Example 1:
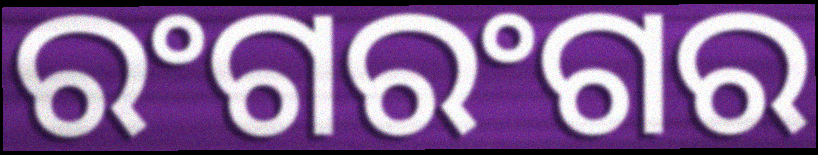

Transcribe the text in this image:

ରଂଗରଂଗର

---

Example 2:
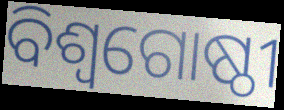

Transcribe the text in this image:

ବିଶ୍ୱଗୋଷ୍ଠୀ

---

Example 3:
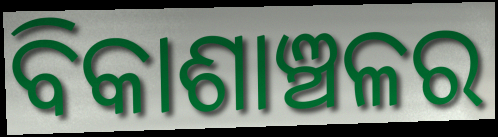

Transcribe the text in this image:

ବିକାଶାଞ୍ଚଳର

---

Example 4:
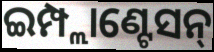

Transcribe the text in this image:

ଇମ୍ପ୍ଲାଣ୍ଟେସନ୍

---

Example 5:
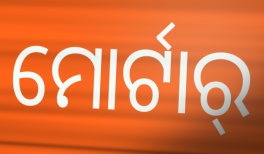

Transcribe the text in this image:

ମୋର୍ଟାର୍